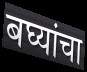
बघ्यांचा